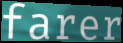
farer